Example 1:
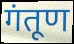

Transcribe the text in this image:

गंतूण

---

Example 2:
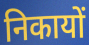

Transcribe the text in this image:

निकायों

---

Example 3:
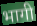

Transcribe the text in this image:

भागी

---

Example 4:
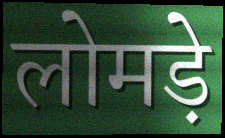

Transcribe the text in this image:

लोमड़े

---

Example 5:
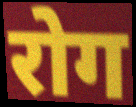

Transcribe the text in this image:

रोग